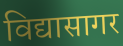
विद्यासागर